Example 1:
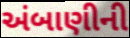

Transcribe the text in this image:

અંબાણીની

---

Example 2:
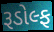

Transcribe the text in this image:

રૂડોલ્ફ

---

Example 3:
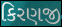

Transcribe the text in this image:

કિરણજી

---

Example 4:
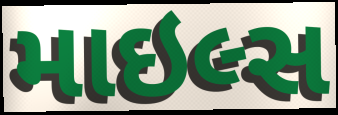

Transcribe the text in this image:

માઇલ્સ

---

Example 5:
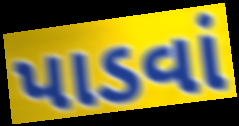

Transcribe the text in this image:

પાડવાં